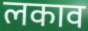
लकाव